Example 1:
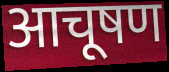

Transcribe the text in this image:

आचूषण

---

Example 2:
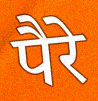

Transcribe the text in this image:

पैरे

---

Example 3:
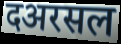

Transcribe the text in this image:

दअरसल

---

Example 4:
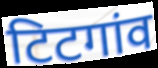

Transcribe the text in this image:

टिटगांव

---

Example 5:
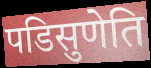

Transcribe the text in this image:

पडिसुणेति